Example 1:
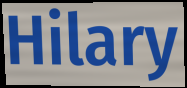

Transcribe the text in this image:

Hilary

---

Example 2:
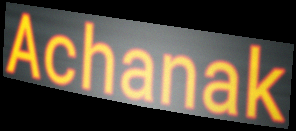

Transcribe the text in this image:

Achanak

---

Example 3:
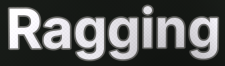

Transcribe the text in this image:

Ragging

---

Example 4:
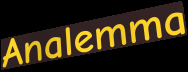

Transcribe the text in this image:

Analemma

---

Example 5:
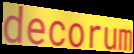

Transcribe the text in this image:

decorum